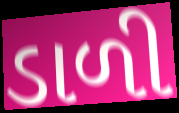
ડાળી